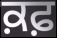
ਕ਼ਫ਼